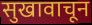
सुखावाचून